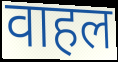
वाहल